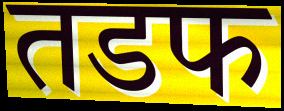
तडफ